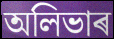
অলিভাৰ